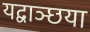
यद्वाञ्छया